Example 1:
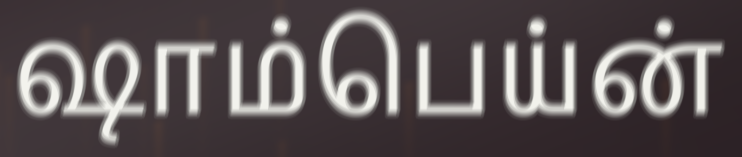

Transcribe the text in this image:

ஷாம்பெய்ன்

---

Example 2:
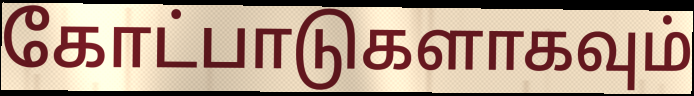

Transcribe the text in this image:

கோட்பாடுகளாகவும்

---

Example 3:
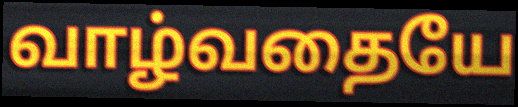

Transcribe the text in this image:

வாழ்வதையே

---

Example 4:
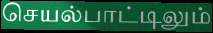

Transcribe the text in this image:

செயல்பாட்டிலும்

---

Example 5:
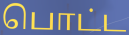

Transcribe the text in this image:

பொட்ட